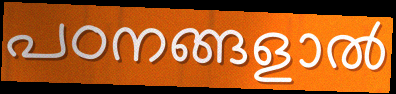
പഠനങ്ങളാൽ